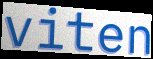
viten